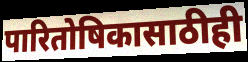
पारितोषिकासाठीही